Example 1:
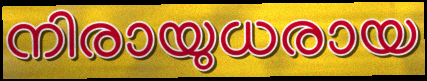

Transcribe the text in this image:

നിരായുധരായ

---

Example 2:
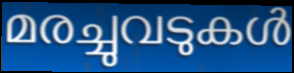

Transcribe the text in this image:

മരച്ചുവടുകൾ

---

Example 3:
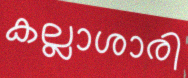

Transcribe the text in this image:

കല്ലാശാരി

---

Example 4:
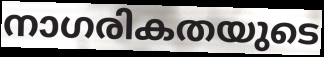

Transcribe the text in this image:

നാഗരികതയുടെ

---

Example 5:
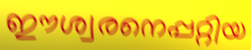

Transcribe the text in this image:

ഈശ്വരനെപ്പറ്റിയ